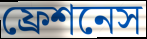
ফ্রেশনেস